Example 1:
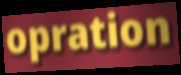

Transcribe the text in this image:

opration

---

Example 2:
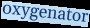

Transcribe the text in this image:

oxygenator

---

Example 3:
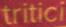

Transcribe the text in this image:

tritici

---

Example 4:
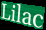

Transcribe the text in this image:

Lilac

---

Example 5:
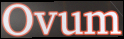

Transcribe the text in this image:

Ovum